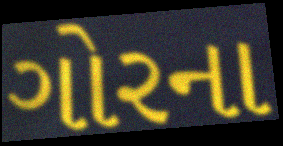
ગોરના